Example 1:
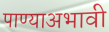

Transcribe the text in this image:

पाण्याअभावी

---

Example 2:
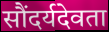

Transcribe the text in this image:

सौंदर्यदेवता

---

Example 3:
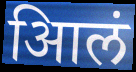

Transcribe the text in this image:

आिलं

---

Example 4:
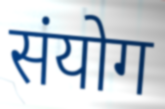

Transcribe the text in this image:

संयोग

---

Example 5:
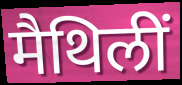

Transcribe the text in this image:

मैथिलीं